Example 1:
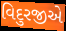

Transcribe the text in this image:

વિદુરજીએ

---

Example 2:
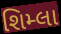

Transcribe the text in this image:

શિમ્લા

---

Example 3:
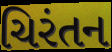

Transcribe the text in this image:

ચિરંતન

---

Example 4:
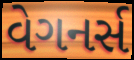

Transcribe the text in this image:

વેગનર્સ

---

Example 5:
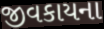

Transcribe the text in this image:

જીવકાયના